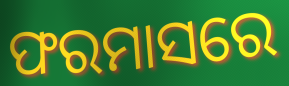
ଫରମାସରେ